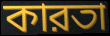
কারতা